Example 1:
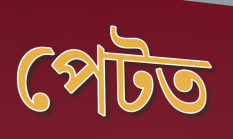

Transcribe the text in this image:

পেটত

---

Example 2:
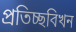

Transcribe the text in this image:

প্ৰতিচ্ছবিখন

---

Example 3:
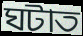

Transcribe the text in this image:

ঘটাত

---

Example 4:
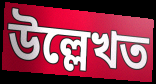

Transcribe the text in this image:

উল্লেখত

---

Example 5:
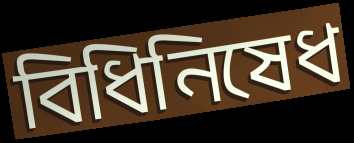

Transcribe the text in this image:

বিধিনিষেধ